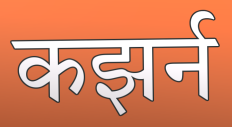
कझर्न